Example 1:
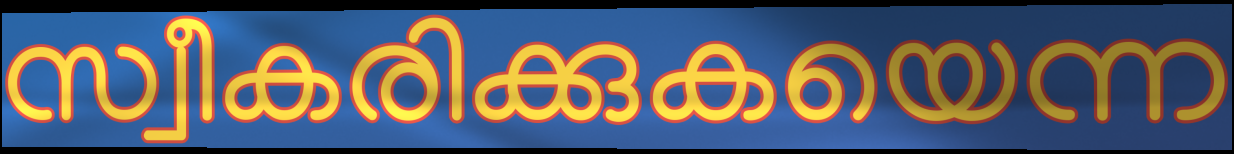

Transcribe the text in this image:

സ്വീകരിക്കുകയെന്ന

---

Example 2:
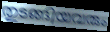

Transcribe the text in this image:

തുടങ്ങിയവരും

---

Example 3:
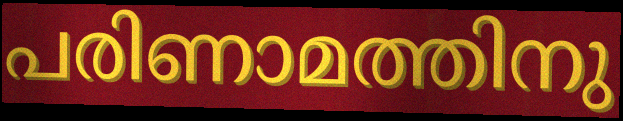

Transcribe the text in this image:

പരിണാമത്തിനു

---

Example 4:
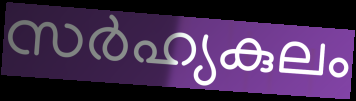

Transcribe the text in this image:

സർഹ്യകുലം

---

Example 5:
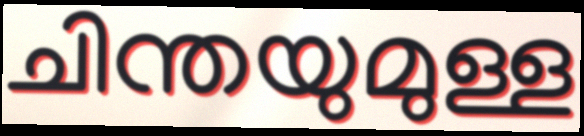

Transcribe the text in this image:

ചിന്തയുമുള്ള